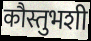
कौस्तुभशी